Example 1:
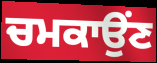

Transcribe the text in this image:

ਚਮਕਾਉਂਣ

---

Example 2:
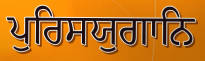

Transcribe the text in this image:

ਪੁਰਿਸਯੁਗਾਨਿ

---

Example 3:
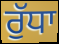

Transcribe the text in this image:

ਰੁੱਧਾ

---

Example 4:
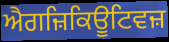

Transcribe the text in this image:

ਐਗਜ਼ਿਕਿਊਟਿਵਜ਼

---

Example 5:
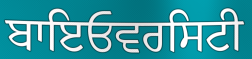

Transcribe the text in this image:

ਬਾਇਓਵਰਸਿਟੀ